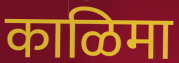
काळिमा